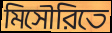
মিসৌরিতে